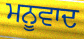
ਮਨੂਵਾਦ